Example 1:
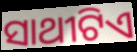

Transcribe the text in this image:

ସାଥୀଟିଏ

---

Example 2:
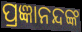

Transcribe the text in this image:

ପ୍ରଜ୍ଞାନନ୍ଦଙ୍କ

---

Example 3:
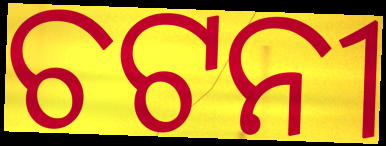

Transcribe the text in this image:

ଚଟନୀ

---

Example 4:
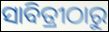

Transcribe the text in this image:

ସାବିତ୍ରୀଠାରୁ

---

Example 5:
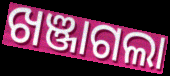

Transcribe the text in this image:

ଖଞ୍ଜାଗଲା